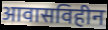
आवासविहीन